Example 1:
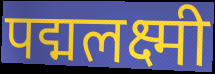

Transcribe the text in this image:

पद्मलक्ष्मी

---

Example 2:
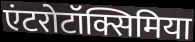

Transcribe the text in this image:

एंटरोटॉक्सिमिया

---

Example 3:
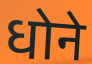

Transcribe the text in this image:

धोने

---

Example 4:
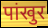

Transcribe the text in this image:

पांखुर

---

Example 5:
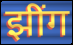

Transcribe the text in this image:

झींग